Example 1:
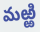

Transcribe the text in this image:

మఱ్ఱి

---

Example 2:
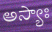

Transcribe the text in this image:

అస్యాః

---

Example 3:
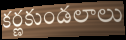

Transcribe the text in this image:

కర్ణకుండలాలు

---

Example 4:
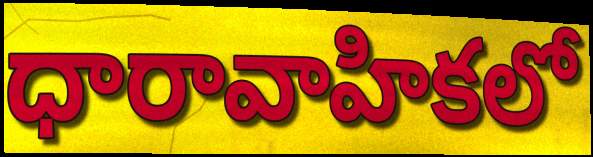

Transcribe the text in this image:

ధారావాహికలో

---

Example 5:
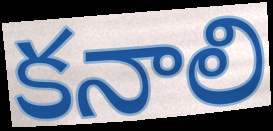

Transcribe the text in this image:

కనాలి